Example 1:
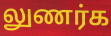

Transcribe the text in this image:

லுணர்க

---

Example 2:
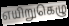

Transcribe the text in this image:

எயிறுகெழு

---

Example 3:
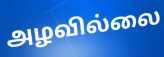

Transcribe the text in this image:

அழவில்லை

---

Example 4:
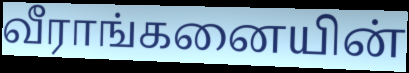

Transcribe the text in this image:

வீராங்கனையின்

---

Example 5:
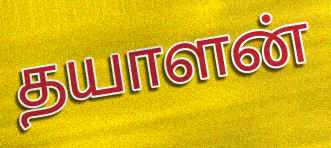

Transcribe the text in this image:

தயாளன்